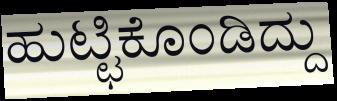
ಹುಟ್ಟಿಕೊಂಡಿದ್ದು